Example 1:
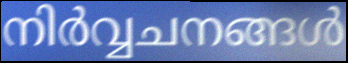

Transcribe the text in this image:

നിർവ്വചനങ്ങൾ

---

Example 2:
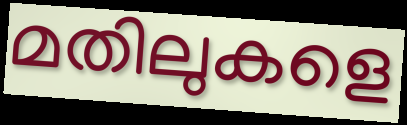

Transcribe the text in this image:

മതിലുകളെ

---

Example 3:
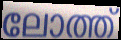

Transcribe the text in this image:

ലോത്ത്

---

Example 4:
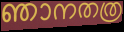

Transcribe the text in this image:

ഞാനതത്ര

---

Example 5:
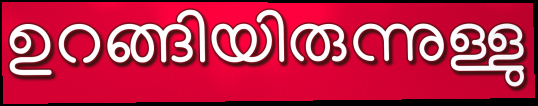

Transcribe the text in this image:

ഉറങ്ങിയിരുന്നുള്ളു